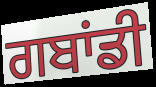
ਗਬਾਂਡੀ